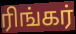
ரிங்கர்